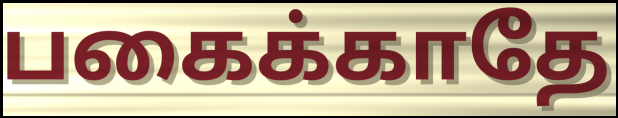
பகைக்காதே